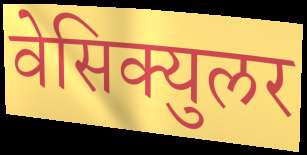
वेसिक्युलर